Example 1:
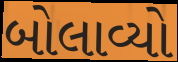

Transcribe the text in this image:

બોલાવ્યો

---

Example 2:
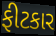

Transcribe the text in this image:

ફીટકાર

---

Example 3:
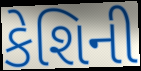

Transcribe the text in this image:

કેશિની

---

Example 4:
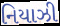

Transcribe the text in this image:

નિયાઝી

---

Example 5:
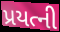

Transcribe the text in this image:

પ્રયત્ની